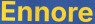
Ennore